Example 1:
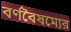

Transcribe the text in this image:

বর্ণবৈষম্যের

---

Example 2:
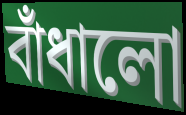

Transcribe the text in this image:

বাঁধালো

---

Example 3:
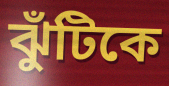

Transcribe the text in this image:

ঝুঁটিকে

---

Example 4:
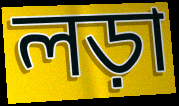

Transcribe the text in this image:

লড়া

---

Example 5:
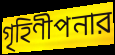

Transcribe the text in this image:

গৃহিণীপনার